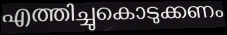
എത്തിച്ചുകൊടുക്കണം